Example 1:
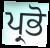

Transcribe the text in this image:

ਪ੍ਰਭੋ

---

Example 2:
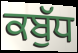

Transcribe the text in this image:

ਕਬੁੱਧ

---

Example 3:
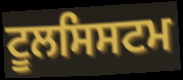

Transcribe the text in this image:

ਟੂਲਸਿਸਟਮ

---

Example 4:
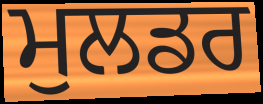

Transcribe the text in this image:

ਮੁਲਡਰ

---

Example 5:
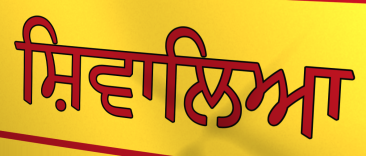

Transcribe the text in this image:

ਸ਼ਿਵਾਲਿਆ